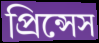
প্রিন্সেস